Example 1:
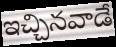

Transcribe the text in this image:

ఇచ్చినవాడే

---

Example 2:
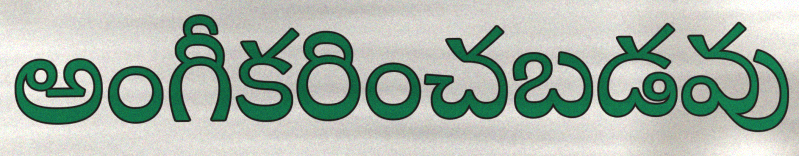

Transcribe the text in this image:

అంగీకరించబడవు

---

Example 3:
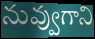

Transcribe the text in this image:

నువ్వుగాని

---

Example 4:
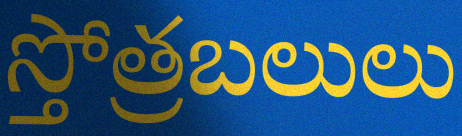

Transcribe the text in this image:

స్తోత్రబలులు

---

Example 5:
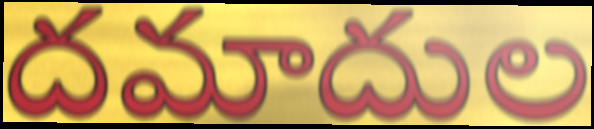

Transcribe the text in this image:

దమాదుల